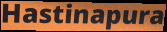
Hastinapura